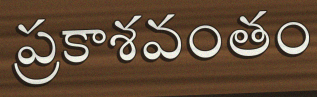
ప్రకాశవంతం